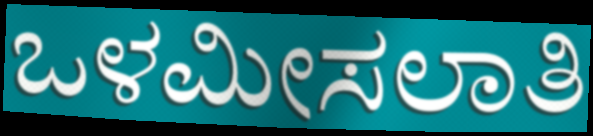
ಒಳಮೀಸಲಾತಿ